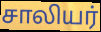
சாலியர்